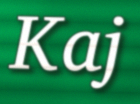
Kaj